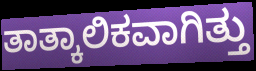
ತಾತ್ಕಾಲಿಕವಾಗಿತ್ತು